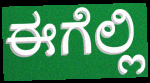
ಈಗೆಲ್ಲಿ